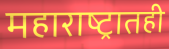
महाराष्ट्रातही